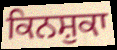
ਕਿਨਸ਼ੁਕਾ